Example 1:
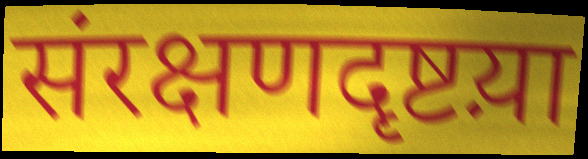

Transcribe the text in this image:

संरक्षणदृष्टय़ा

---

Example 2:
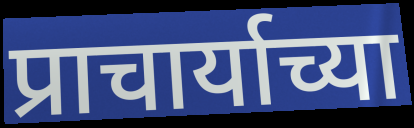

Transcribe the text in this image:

प्राचार्याच्या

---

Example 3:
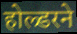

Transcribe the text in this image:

होल्डरने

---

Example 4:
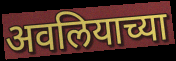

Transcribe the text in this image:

अवलियाच्या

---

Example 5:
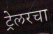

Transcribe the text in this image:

ट्रेलरचा